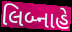
લિબ્નાહે